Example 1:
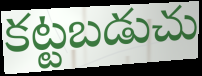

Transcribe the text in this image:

కట్టబడుచు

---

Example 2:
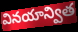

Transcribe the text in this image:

వినయాన్విత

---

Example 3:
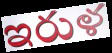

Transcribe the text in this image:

ఇరుళ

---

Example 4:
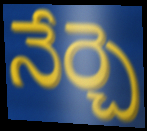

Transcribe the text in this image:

నేర్చె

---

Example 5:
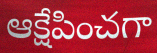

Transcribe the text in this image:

ఆక్షేపించగా